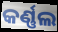
କର୍ଣ୍ଣଲ